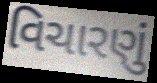
વિચારણું